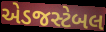
એડજસ્ટેબલ